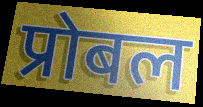
प्रोबल